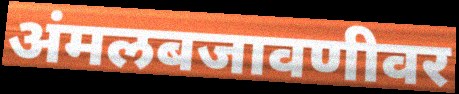
अंमलबजावणीवर